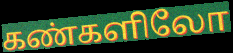
கண்களிலோ